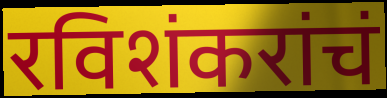
रविशंकरांचं